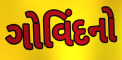
ગોવિંદનો